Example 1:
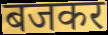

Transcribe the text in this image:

बजकर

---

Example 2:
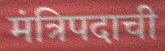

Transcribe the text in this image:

मंत्रिपदाची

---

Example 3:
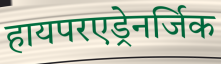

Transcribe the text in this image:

हायपरएड्रेनर्जिक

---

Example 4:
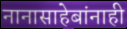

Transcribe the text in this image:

नानासाहेबांनाही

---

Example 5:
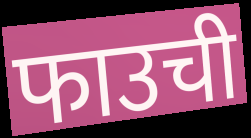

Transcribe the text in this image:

फाउची